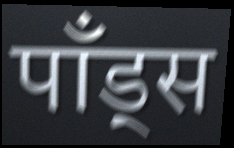
पाँड्स